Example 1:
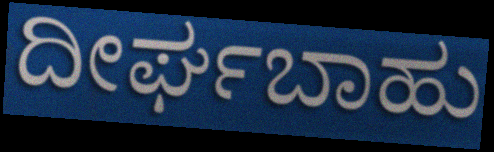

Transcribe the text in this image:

ದೀರ್ಘಬಾಹು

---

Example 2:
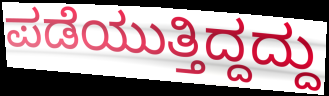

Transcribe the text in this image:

ಪಡೆಯುತ್ತಿದ್ದದ್ದು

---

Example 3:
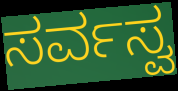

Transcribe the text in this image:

ಸರ್ವಸ್ವ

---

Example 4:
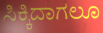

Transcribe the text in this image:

ಸಿಕ್ಕಿದಾಗಲೂ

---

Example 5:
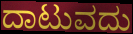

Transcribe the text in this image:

ದಾಟುವದು